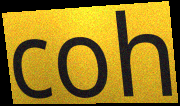
coh